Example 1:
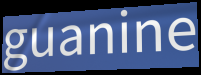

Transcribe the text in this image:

guanine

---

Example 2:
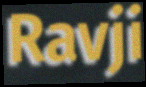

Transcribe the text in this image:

Ravji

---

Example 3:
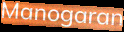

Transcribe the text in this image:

Manogaran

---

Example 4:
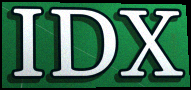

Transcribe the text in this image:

IDX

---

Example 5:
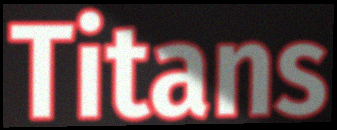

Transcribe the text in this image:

Titans